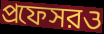
প্রফেসরও